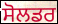
ਸੋਲਡਰ